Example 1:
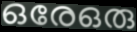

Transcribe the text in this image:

ഒരേഒരു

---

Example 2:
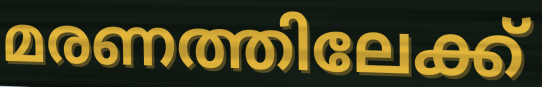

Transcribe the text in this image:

മരണത്തിലേക്ക്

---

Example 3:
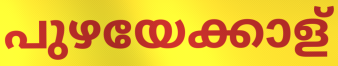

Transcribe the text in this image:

പുഴയേക്കാള്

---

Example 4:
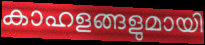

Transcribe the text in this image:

കാഹളങ്ങളുമായി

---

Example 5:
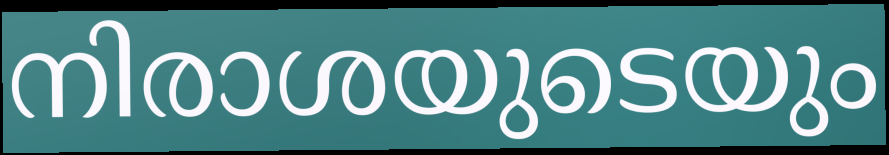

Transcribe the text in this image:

നിരാശയുടെയും